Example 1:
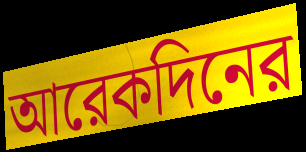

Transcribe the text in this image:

আরেকদিনের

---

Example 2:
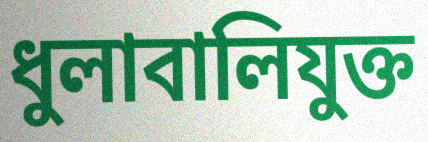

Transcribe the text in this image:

ধুলাবালিযুক্ত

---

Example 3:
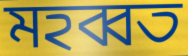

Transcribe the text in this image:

মহব্বত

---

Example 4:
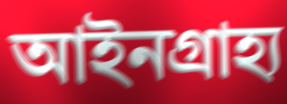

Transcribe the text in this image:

আইনগ্রাহ্য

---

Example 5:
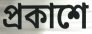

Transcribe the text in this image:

প্রকাশে